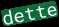
dette